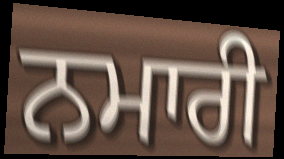
ਨਮਾਰੀ